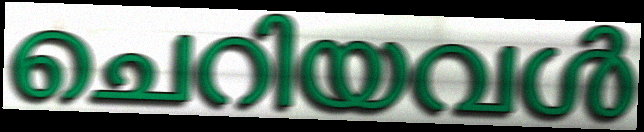
ചെറിയവൾ